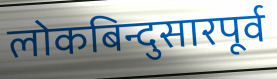
लोकबिन्दुसारपूर्व